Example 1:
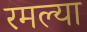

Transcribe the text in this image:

रमल्या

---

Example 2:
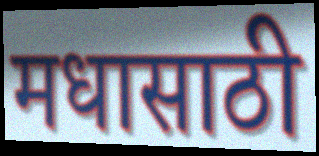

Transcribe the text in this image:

मधासाठी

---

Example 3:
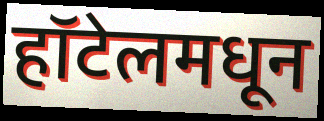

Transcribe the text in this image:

हॉटेलमधून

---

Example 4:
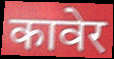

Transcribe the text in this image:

कावेर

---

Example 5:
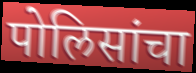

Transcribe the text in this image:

पोलिसांचा